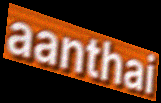
aanthai